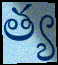
త్య